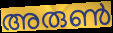
അരുൺ